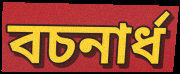
বচনার্ধ